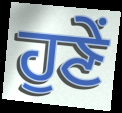
ਹੁਣੇਂ